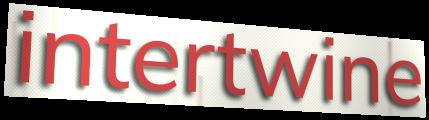
intertwine